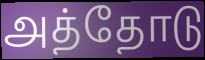
அத்தோடு